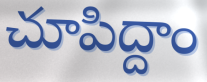
చూపిద్దాం